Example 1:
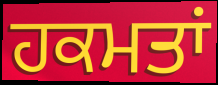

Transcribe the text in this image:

ਹਕਮਤਾਂ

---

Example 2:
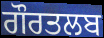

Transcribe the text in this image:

ਗੌਰਤਲਬ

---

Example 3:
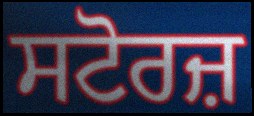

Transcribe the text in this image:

ਸਟੋਰਜ਼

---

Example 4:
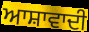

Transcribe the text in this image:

ਆਸ਼ਾਵਾਦੀ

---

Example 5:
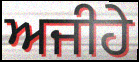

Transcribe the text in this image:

ਅਜੀਹੇ